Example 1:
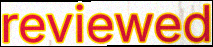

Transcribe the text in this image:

reviewed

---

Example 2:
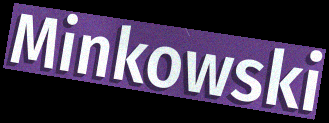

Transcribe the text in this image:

Minkowski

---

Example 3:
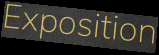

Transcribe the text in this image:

Exposition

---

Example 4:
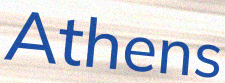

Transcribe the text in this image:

Athens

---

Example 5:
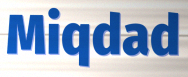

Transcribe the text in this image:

Miqdad